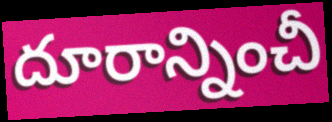
దూరాన్నించీ